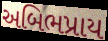
અબિભપ્રાય